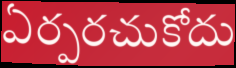
ఏర్పరచుకోదు